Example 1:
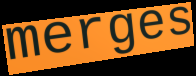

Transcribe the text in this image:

merges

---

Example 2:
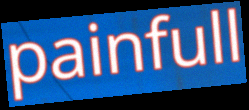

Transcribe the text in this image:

painfull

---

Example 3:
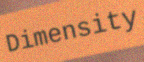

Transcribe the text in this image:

Dimensity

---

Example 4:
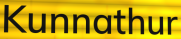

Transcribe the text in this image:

Kunnathur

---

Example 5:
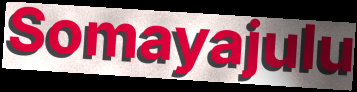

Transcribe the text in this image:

Somayajulu